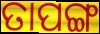
ତାପଙ୍ଗ